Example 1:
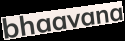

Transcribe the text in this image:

bhaavana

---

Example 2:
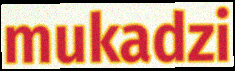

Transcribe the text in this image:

mukadzi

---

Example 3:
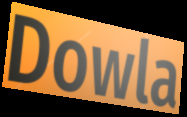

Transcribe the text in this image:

Dowla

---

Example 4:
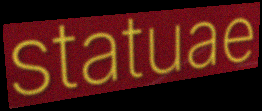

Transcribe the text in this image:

statuae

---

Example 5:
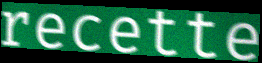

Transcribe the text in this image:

recette